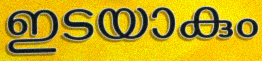
ഇടയാകും